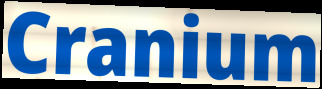
Cranium